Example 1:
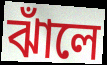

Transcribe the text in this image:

ঝাঁলে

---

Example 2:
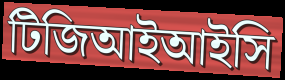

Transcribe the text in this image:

টিজিআইআইসি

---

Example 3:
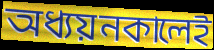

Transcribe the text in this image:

অধ্যয়নকালেই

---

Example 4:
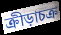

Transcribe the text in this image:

ক্রীড়াচক্র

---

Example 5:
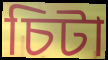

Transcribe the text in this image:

চিটা